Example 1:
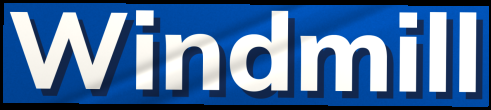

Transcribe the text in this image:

Windmill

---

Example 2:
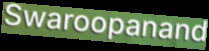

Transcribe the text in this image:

Swaroopanand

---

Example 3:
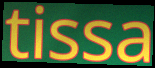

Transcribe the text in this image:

tissa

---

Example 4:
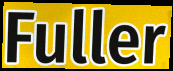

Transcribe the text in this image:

Fuller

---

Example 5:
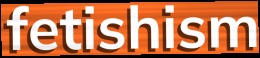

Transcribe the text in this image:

fetishism